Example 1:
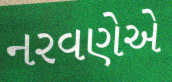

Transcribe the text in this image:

નરવણેએ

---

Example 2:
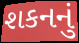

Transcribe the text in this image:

શકનનું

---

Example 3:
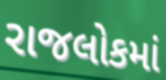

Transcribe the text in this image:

રાજલોકમાં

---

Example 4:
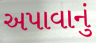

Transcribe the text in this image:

અપાવાનું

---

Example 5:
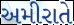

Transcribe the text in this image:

અમીરાતે